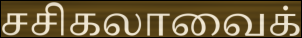
சசிகலாவைக்